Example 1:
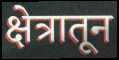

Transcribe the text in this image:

क्षेत्रातून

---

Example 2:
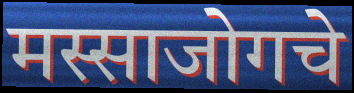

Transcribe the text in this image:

मस्साजोगचे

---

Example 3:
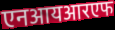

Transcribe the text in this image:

एनआयआरएफ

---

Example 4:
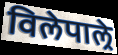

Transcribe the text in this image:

विलेपाल्रे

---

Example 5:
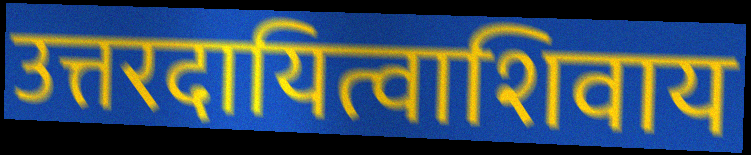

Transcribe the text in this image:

उत्तरदायित्वाशिवाय